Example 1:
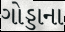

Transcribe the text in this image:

ગોડ્ડાના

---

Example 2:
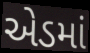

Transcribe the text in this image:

એડમાં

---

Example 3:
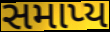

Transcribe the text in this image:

સમાપ્ય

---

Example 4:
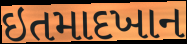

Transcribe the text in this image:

ઇતમાદખાન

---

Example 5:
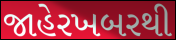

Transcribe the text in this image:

જાહેરખબરથી